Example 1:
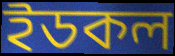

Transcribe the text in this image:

ইডকল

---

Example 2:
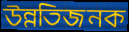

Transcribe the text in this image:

উন্নতিজনক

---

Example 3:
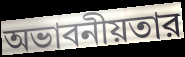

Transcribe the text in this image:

অভাবনীয়তার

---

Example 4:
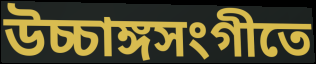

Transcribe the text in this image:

উচ্চাঙ্গসংগীতে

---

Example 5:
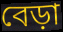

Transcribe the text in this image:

বেড়া